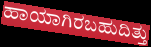
ಹಾಯಾಗಿರಬಹುದಿತ್ತು